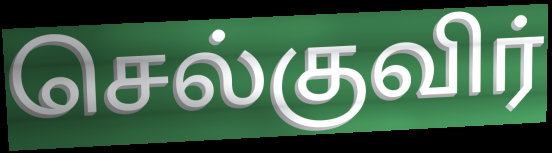
செல்குவிர்